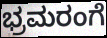
ಭ್ರಮರಂಗೆ